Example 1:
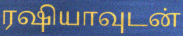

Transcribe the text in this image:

ரஷியாவுடன்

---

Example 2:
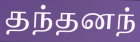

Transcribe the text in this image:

தந்தனந்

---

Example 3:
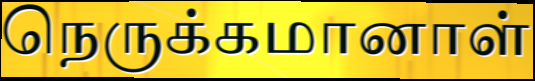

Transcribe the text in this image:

நெருக்கமானாள்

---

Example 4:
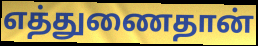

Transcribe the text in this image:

எத்துணைதான்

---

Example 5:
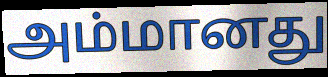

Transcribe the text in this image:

அம்மானது